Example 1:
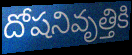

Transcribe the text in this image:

దోషనివృత్తికి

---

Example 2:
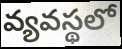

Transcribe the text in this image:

వ్యవస్థలో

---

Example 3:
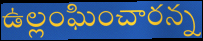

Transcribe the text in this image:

ఉల్లంఘించారన్న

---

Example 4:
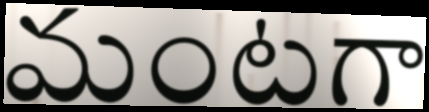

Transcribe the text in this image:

మంటగా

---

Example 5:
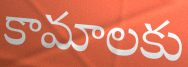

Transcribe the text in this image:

కామాలకు